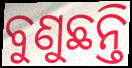
ବୁଣୁଛନ୍ତି